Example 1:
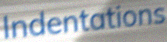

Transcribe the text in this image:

Indentations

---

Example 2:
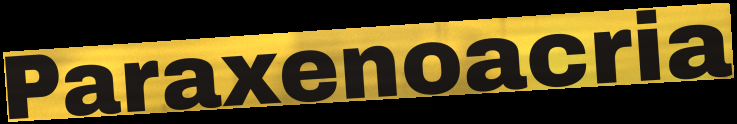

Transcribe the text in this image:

Paraxenoacria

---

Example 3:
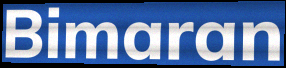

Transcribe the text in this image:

Bimaran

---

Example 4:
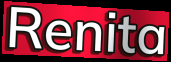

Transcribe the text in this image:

Renita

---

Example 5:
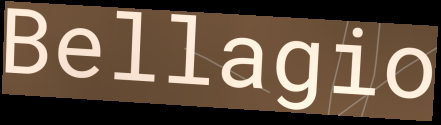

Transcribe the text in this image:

Bellagio